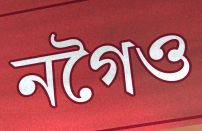
নগৈও